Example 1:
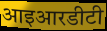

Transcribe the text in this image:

आइआरडीटी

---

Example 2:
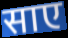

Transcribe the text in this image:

साए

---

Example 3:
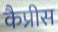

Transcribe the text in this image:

कैप्रीस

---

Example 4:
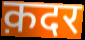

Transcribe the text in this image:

क़दर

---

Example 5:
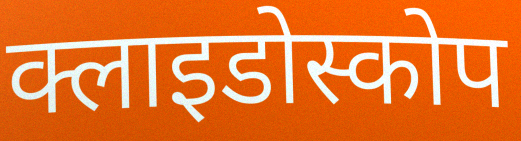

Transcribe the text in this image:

क्लाइडोस्कोप